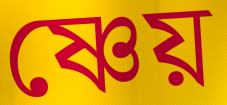
ষ্ণেয়